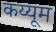
कय्यूम